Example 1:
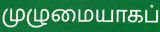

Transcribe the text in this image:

முழுமையாகப்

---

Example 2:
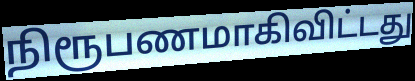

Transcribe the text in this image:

நிரூபணமாகிவிட்டது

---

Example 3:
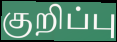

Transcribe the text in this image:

குறிப்பு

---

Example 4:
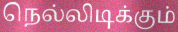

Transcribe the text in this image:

நெல்லிடிக்கும்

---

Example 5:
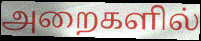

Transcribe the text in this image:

அறைகளில்